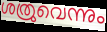
ശത്രുവെന്നും